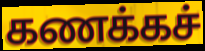
கணக்கச்